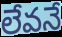
లేవనే